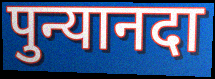
पुन्यानदा